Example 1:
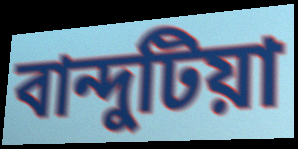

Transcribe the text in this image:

বান্দুটিয়া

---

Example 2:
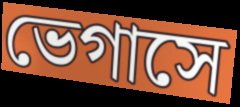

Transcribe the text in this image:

ভেগাসে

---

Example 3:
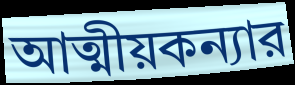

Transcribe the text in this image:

আত্মীয়কন্যার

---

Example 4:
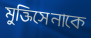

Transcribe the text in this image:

মুক্তিসেনাকে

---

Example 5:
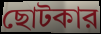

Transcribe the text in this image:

ছোটকার